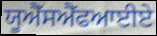
ਯੂਐੱਸਐੱਫਆਈਏ